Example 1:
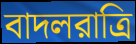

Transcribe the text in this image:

বাদলরাত্রি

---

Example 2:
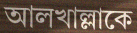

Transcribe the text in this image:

আলখাল্লাকে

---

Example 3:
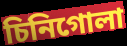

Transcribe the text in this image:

চিনিগোলা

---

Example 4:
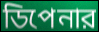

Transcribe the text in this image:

ডিপেনার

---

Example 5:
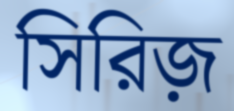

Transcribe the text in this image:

সিরিজ়